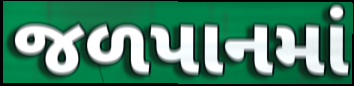
જળપાનમાં